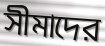
সীমাদের